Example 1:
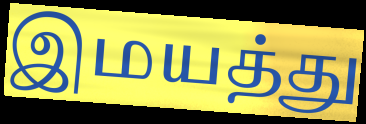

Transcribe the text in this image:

இமயத்து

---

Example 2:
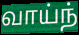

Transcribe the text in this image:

வாய்ந்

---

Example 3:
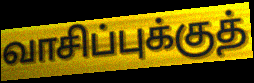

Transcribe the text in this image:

வாசிப்புக்குத்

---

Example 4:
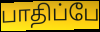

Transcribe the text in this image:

பாதிப்பே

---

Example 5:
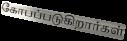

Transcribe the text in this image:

கோபப்படுகிறார்கள்